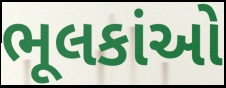
ભૂલકાંઓ